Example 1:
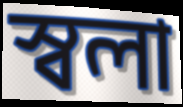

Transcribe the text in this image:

স্বলা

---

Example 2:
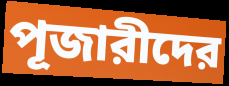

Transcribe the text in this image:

পূজারীদের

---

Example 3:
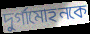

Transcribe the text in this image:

দুর্গামোহনকে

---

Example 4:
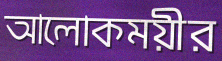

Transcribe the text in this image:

আলোকময়ীর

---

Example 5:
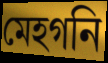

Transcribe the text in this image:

মেহগনি